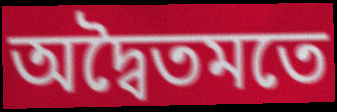
অদ্বৈতমতে